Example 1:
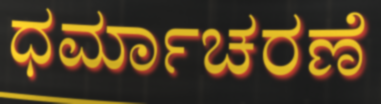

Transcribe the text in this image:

ಧರ್ಮಾಚರಣೆ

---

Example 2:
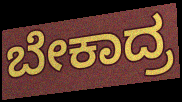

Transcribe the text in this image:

ಬೇಕಾದ್ರ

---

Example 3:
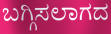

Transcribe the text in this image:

ಬಗ್ಗಿಸಲಾಗದ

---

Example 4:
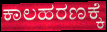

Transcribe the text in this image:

ಕಾಲಹರಣಕ್ಕೆ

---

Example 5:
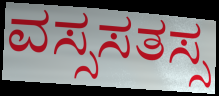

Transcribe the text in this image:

ವಸ್ಸಸತಸ್ಸ